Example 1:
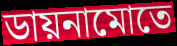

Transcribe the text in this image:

ডায়নামোতে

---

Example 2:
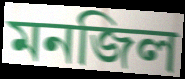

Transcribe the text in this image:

মনজিল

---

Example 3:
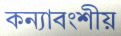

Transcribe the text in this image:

কন্যাবংশীয়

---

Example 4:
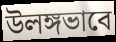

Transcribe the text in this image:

উলঙ্গভাবে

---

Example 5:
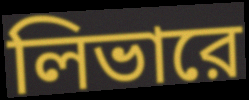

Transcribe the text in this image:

লিভারে